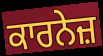
ਕਾਰਨੇਜ਼